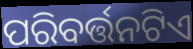
ପରିବର୍ତ୍ତନଟିଏ